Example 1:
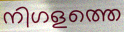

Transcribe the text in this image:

നിഗളത്തെ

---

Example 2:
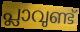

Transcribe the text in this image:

പ്ലാവുണ്ട്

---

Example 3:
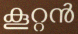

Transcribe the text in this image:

കൂറ്റൻ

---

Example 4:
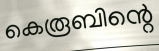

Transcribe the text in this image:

കെരൂബിന്റെ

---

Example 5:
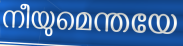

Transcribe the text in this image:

നീയുമെന്തയേ